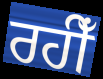
ਰਹੀਁ